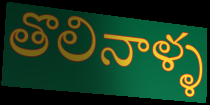
తొలినాళ్ళ